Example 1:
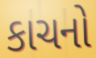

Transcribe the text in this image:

કાચનો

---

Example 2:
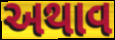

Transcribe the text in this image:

અથાવ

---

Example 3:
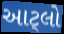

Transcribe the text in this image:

આટ્લો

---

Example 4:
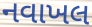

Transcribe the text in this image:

નવાખલ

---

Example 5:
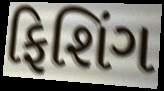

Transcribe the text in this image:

ફિશિંગ